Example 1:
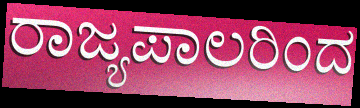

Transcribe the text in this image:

ರಾಜ್ಯಪಾಲರಿಂದ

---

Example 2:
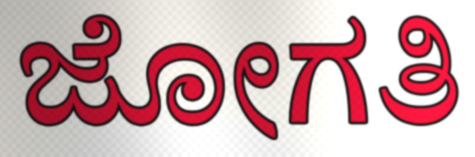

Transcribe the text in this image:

ಜೋಗತಿ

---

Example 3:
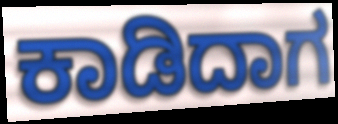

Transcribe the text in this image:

ಕಾಡಿದಾಗ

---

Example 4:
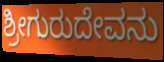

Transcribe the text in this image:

ಶ್ರೀಗುರುದೇವನು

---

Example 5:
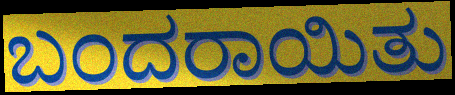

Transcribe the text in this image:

ಬಂದರಾಯಿತು